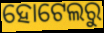
ହୋଟେଲରୁ